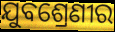
ଯୁବଶ୍ରେଣୀର